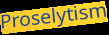
Proselytism